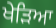
ਖੇੜਿਆ